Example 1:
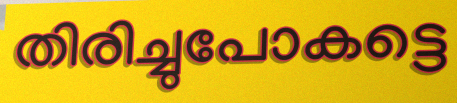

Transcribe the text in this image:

തിരിച്ചുപോകട്ടെ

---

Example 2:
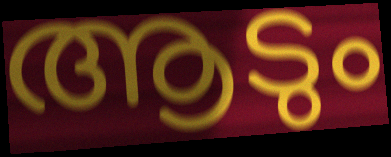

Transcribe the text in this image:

ആടും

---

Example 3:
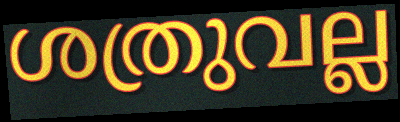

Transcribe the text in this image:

ശത്രുവല്ല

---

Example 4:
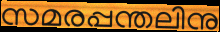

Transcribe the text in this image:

സമരപ്പന്തലിനു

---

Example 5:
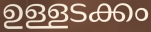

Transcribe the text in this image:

ഉള്ളടക്കം